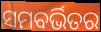
ସମବର୍ଭିତର